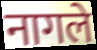
नागले